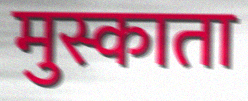
मुस्काता